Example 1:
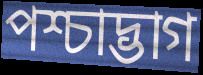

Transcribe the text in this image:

পশ্চাদ্ভাগ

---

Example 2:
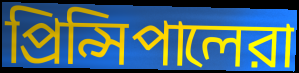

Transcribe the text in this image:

প্রিন্সিপালেরা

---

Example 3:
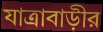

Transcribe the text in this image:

যাত্রাবাড়ীর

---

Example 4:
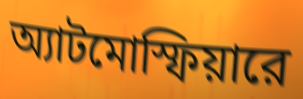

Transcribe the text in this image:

অ্যাটমোস্ফিয়ারে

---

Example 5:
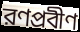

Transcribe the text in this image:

রণপ্রবীণ